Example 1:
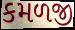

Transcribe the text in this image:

કમળજી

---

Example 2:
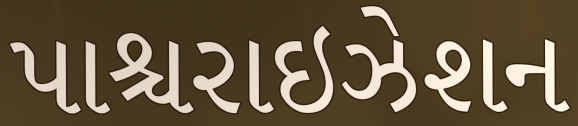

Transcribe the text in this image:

પાશ્ચરાઇઝેશન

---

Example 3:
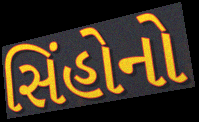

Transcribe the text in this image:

સિંહોનો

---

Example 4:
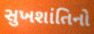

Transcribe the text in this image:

સુખશાંતિનો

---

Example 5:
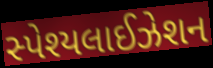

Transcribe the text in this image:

સ્પેશ્યલાઈઝેશન